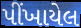
પીંખાયેલ